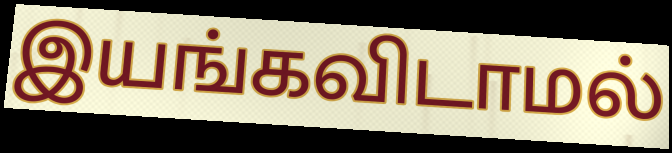
இயங்கவிடாமல்